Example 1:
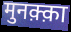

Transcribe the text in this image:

मुनक़्क़ा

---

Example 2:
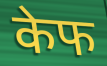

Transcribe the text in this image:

केफ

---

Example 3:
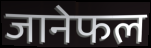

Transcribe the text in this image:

जानेफल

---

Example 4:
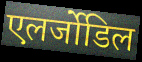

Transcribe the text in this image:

एलर्जोडिल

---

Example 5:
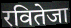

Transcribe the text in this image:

रवितेजा